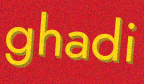
ghadi